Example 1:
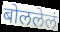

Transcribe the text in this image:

बोललेलं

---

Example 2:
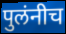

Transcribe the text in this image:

पुलंनीच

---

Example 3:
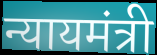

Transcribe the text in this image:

न्यायमंत्री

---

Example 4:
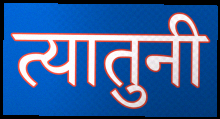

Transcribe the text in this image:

त्यातुनी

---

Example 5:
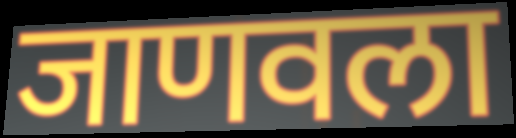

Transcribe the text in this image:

जाणवला